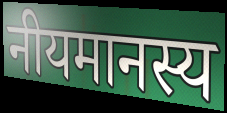
नीयमानस्य